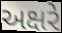
અક્ષરે